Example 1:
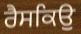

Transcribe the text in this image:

ਰੈਸਕਿਉ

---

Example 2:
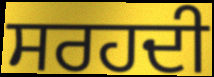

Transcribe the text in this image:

ਸਰਹਦੀ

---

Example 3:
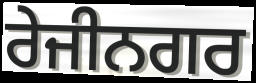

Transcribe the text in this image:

ਰੇਜੀਨਗਰ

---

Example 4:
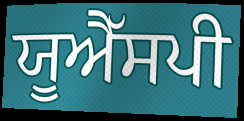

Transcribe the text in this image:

ਯੂਐੱਸਪੀ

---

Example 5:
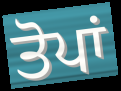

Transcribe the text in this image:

ਤੋਪਾਂ